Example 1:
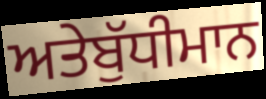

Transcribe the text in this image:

ਅਤੇਬੁੱਧੀਮਾਨ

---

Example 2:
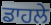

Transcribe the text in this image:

ਡਾਹਲੇ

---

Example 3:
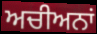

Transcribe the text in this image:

ਅਚੀਅਨਾਂ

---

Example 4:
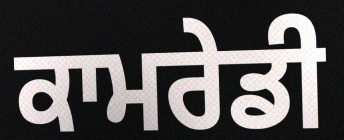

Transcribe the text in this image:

ਕਾਮਰੇਡੀ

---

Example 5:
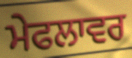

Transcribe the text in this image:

ਮੇਫਲਾਵਰ